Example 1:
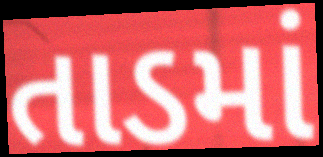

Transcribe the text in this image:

તાડમાં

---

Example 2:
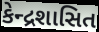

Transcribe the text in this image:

કેન્દ્રશાસિત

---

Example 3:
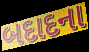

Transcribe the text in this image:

બદાદના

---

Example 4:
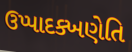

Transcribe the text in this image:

ઉપ્પાદક્ખણેતિ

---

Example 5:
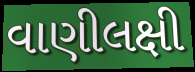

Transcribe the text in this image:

વાણીલક્ષી